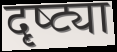
दृष्ट्या